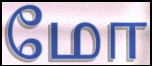
மோ